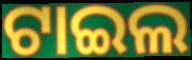
ଟାଇଲ